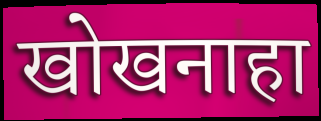
खोखनाहा